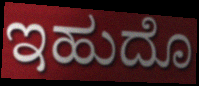
ಇಹುದೊ